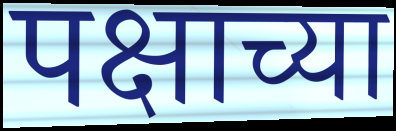
पक्षाच्या